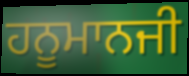
ਹਨੂਮਾਨਜੀ